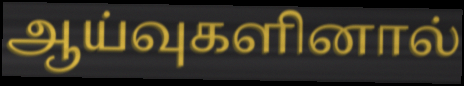
ஆய்வுகளினால்